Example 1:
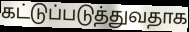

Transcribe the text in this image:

கட்டுப்படுத்துவதாக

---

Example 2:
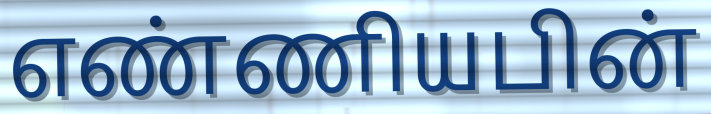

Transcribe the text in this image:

எண்ணியபின்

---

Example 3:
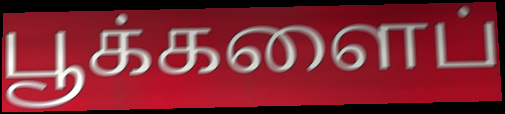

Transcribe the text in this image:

பூக்களைப்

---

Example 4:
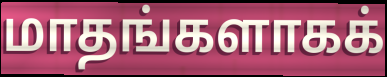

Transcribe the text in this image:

மாதங்களாகக்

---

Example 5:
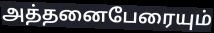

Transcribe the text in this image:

அத்தனைபேரையும்